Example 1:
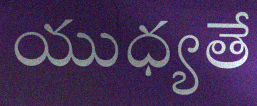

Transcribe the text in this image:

యుధ్యతే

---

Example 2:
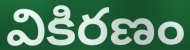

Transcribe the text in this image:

వికిరణం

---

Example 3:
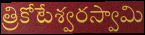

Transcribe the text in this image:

త్రికోటేశ్వరస్వామి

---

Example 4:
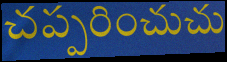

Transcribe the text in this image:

చప్పరించుచు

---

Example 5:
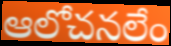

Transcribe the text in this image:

ఆలోచనలేం